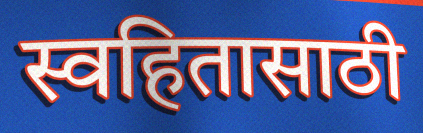
स्वहितासाठी